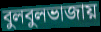
বুলবুলভাজায়